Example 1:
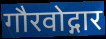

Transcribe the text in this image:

गौरवोद्गार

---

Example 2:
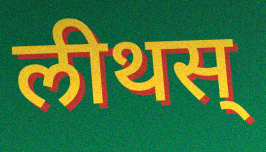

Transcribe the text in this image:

लीथस्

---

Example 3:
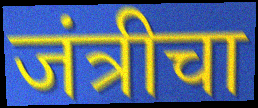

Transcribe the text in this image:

जंत्रीचा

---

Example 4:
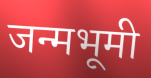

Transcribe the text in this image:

जन्मभूमी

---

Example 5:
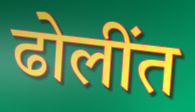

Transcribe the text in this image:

ढोलींत